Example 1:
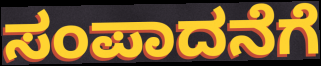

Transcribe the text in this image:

ಸಂಪಾದನೆಗೆ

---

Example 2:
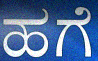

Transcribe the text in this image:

ಹಗೆ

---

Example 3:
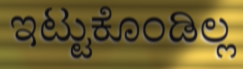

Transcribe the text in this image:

ಇಟ್ಟುಕೊಂಡಿಲ್ಲ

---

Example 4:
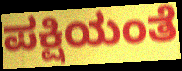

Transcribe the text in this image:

ಪಕ್ಷಿಯಂತೆ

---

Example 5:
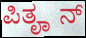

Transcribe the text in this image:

ಪಿತೄನ್